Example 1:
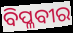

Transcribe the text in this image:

ବିପ୍ଳବୀର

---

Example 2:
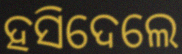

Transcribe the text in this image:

ହସିଦେଲେ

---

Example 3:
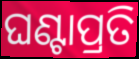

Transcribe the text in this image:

ଘଣ୍ଟାପ୍ରତି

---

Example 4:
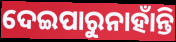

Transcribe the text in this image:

ଦେଇପାରୁନାହାଁନ୍ତି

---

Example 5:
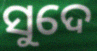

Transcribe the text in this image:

ସୁଦେ